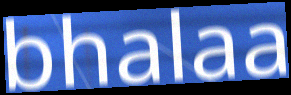
bhalaa